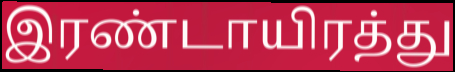
இரண்டாயிரத்து